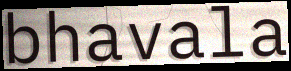
bhavala